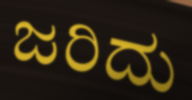
ಜರಿದು